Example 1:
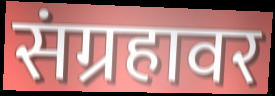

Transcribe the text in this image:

संग्रहावर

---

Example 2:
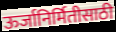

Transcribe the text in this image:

ऊर्जानिर्मितीसाठी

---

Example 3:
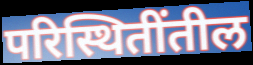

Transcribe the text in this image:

परिस्थितींतील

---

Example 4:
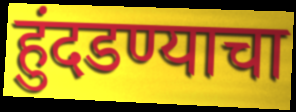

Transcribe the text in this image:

हुंदडण्याचा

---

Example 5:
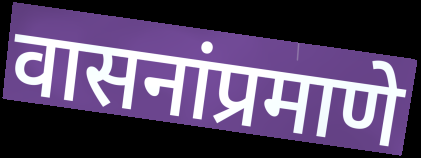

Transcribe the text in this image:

वासनांप्रमाणे